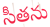
సీతను